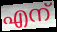
എന്